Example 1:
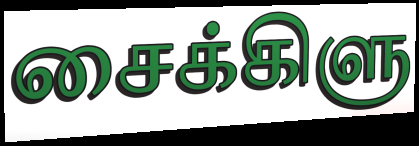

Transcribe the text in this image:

சைக்கிளு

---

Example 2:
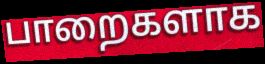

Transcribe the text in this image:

பாறைகளாக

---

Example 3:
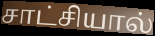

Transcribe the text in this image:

சாட்சியால்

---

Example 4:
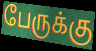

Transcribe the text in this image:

பேருக்கு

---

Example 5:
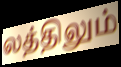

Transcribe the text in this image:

லத்திலும்